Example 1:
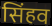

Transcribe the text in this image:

सिंहव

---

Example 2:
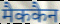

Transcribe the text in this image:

मैककैन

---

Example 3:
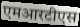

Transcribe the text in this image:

एमआरटीएस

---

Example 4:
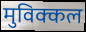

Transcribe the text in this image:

मुविक्कल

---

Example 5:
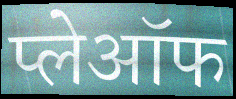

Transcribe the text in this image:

प्‍लेऑफ